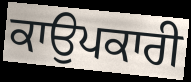
ਕਾਉਪਕਾਰੀ